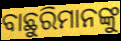
ବାଛୁରିମାନଙ୍କୁ